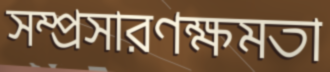
সম্প্রসারণক্ষমতা